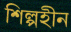
শিল্পহীন